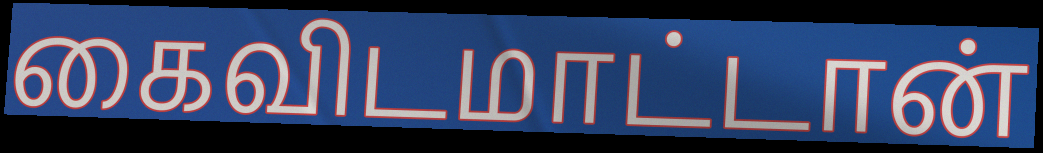
கைவிடமாட்டான்